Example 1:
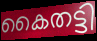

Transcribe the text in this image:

കൈതട്ടി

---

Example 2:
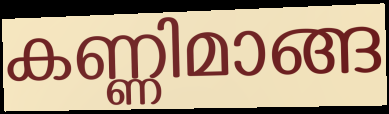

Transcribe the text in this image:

കണ്ണിമാങ്ങ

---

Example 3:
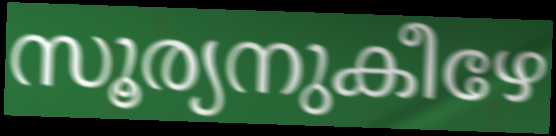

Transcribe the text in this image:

സൂര്യനുകീഴേ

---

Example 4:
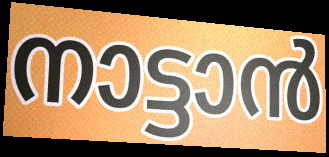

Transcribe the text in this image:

നാട്ടാൻ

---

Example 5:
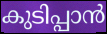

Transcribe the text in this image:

കുടിപ്പാൻ